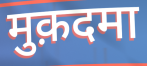
मुक़दमा